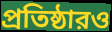
প্রতিষ্ঠারও